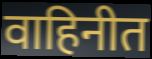
वाहिनीत